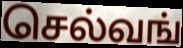
செல்வங்